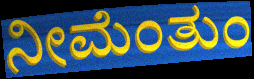
ನೀಮೆಂತುಂ